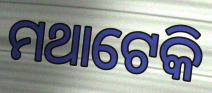
ମଥାଟେକି